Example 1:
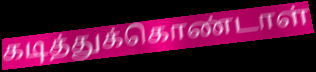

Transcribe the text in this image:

கடித்துக்கொண்டாள்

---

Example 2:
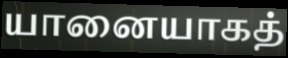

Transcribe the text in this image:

யானையாகத்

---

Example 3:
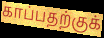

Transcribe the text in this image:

காப்பதற்குக்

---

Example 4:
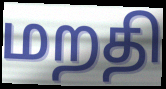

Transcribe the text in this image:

மறதி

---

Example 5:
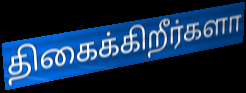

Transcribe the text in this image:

திகைக்கிறீர்களா